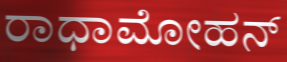
ರಾಧಾಮೋಹನ್